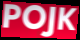
POJK